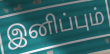
இனிப்பும்